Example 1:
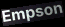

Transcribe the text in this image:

Empson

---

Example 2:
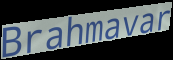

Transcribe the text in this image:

Brahmavar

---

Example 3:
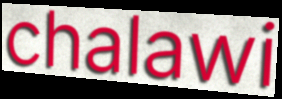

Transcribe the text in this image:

chalawi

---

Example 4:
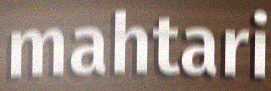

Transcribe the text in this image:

mahtari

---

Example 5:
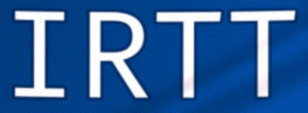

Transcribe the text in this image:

IRTT